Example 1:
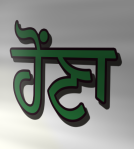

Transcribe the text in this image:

ਹੋਂਣਾ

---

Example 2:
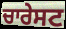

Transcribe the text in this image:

ਚਾਰੇਸਟ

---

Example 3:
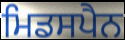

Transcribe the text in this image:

ਮਿਡਸਪੈਨ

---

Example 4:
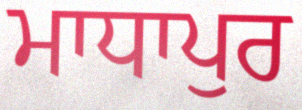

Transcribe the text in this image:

ਮਾਧਾਪੁਰ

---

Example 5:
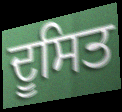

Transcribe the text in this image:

ਦੂਸਿਤ